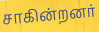
சாகின்றனர்